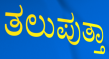
ತಲುಪುತ್ತಾ